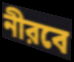
নীরবে